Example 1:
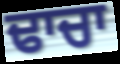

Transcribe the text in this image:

ਢਾਚਾ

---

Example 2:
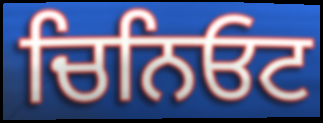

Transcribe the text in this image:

ਚਿਨਿਓਟ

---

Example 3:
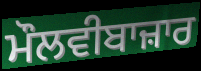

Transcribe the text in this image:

ਮੌਲਵੀਬਾਜ਼ਾਰ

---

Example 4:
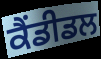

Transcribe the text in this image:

ਕੈਂਡੀਡਲ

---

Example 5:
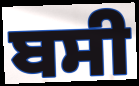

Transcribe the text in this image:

ਬਸੀ